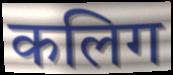
कलिग